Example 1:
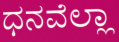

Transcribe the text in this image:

ಧನವೆಲ್ಲಾ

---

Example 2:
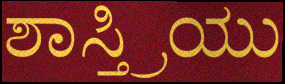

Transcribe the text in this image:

ಶಾಸ್ತ್ರಿಯು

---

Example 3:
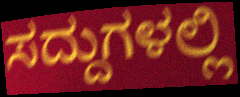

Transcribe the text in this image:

ಸದ್ದುಗಳಲ್ಲಿ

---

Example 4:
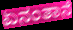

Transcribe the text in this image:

ಏನಂತಾನೆ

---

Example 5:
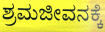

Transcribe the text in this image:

ಶ್ರಮಜೀವನಕ್ಕೆ